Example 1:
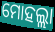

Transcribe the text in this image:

ମୋହଲ୍ଲା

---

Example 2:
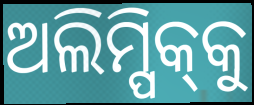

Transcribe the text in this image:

ଅଲିମ୍ପିକ୍‌କୁ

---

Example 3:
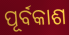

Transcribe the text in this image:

ପୂର୍ବକାଶ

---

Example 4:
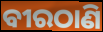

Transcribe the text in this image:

ବୀରଠାଣି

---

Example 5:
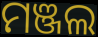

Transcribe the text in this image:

ମଞ୍ଜଲ